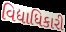
વિદ્યાધિકારી